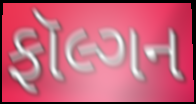
ફૉલ્ગન